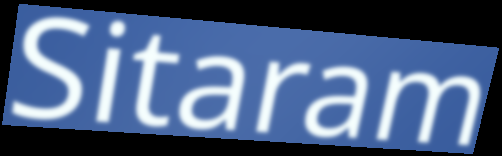
Sitaram